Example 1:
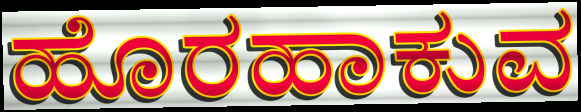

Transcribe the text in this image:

ಹೊರಹಾಕುವ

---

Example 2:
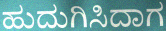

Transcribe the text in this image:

ಹುದುಗಿಸಿದಾಗ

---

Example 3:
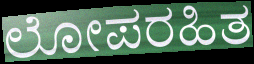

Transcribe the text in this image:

ಲೋಪರಹಿತ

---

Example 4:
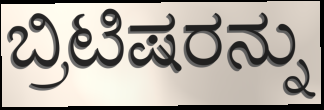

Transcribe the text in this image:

ಬ್ರಿಟಿಷರನ್ನು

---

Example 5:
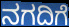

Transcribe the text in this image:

ನಗದಿಗೆ